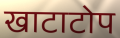
खाटाटोप